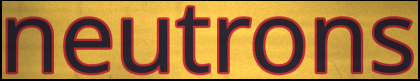
neutrons